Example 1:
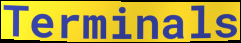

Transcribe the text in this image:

Terminals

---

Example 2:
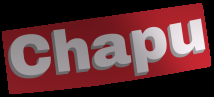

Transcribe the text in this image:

Chapu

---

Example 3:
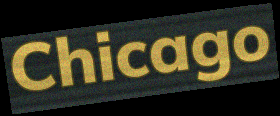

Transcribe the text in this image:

Chicago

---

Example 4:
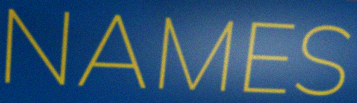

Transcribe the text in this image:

NAMES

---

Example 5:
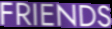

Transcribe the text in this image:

FRIENDS